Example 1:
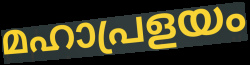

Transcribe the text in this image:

മഹാപ്രളയം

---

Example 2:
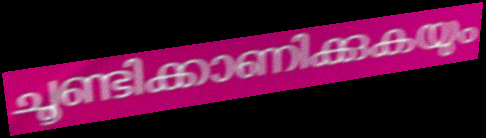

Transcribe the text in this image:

ചൂണ്ടിക്കാണിക്കുകയും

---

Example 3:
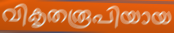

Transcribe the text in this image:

വികൃതരൂപിയായ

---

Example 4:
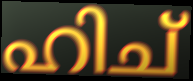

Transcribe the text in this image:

ഹിച്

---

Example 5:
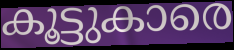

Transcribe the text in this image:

കൂട്ടുകാരെ